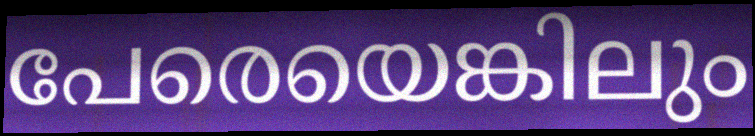
പേരെയെങ്കിലും